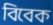
বিবেক